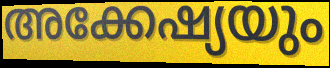
അക്കേഷ്യയും